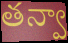
తన్వా